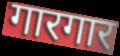
गारगार